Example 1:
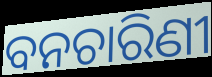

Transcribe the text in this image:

ବନଚାରିଣୀ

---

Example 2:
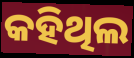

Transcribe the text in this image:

କହିଥିଲ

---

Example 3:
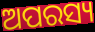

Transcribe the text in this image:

ଅପରସ୍ୟ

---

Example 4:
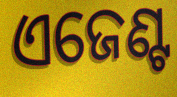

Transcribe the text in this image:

ଏଜେଣ୍ଟ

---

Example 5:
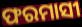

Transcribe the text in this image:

ଫରମାସୀ